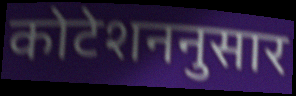
कोटेशननुसार